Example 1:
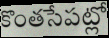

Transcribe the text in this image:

కొంతసేపట్లో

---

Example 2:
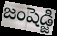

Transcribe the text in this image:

జంషెడ్జి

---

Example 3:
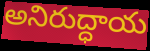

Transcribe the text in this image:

అనిరుద్ధాయ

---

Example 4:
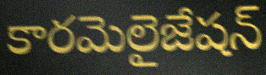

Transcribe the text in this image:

కారమెలైజేషన్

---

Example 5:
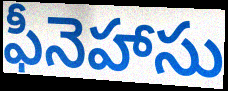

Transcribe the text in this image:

ఫీనెహాసు